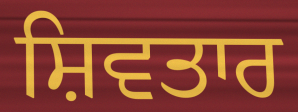
ਸ਼ਿਵਤਾਰ